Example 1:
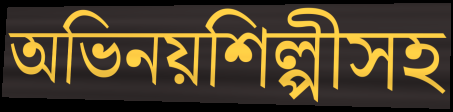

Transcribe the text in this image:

অভিনয়শিল্পীসহ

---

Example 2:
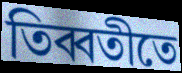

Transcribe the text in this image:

তিব্বতীতে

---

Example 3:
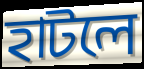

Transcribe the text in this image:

হাটলে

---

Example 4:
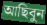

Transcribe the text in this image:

আছিবুন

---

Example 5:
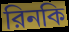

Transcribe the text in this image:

রিনকি